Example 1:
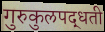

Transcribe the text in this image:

गुरुकुलपद्धती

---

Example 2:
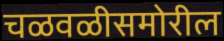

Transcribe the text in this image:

चळवळीसमोरील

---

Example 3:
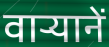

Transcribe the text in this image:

वार्‍यानें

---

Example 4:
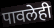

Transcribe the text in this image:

पावलेही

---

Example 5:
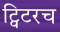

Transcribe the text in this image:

ट्विटरच